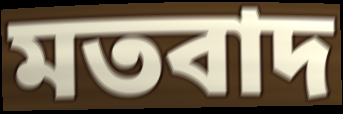
মতবাদ